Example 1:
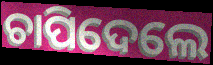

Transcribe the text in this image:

ଚାପିଦେଲେ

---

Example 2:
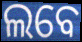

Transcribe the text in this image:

ଲବେ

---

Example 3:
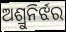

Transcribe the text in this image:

ଅଶ୍ରୁନିର୍ଝର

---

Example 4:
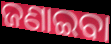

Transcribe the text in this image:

ଜଣାଇବା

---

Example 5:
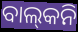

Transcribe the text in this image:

ବାଲ୍‍କନି